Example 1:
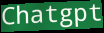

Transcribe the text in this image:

Chatgpt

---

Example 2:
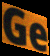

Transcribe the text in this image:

Ge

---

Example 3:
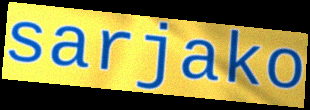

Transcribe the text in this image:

sarjako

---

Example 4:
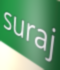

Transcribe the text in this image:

suraj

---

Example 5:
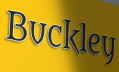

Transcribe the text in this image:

Buckley